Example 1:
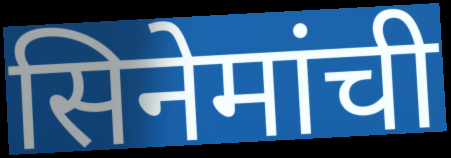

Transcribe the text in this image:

सिनेमांची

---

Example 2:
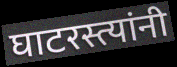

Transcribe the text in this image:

घाटरस्त्यांनी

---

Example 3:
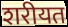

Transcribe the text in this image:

शरीयत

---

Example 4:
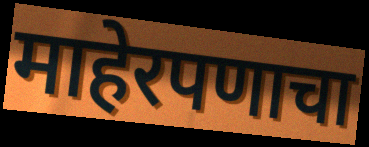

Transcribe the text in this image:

माहेरपणाचा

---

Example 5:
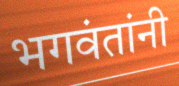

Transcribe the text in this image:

भगवंतांनी